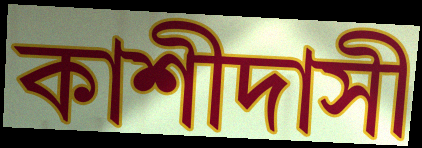
কাশীদাসী